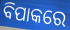
ବିପାକରେ